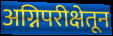
अग्निपरीक्षेतून